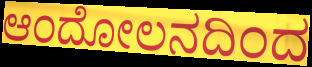
ಆಂದೋಲನದಿಂದ